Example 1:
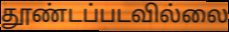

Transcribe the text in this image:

தூண்டப்படவில்லை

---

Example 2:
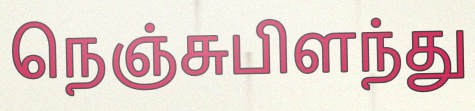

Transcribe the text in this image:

நெஞ்சுபிளந்து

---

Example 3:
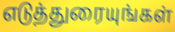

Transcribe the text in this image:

எடுத்துரையுங்கள்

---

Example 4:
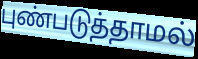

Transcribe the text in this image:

புண்படுத்தாமல்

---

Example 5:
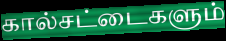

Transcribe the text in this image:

கால்சட்டைகளும்